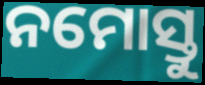
ନମୋସ୍ତୁ